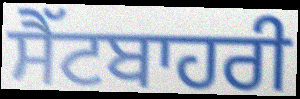
ਸੈੱਟਬਾਹਰੀ